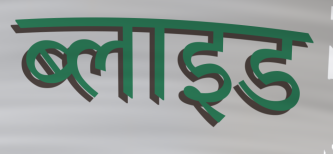
ब्लाइड